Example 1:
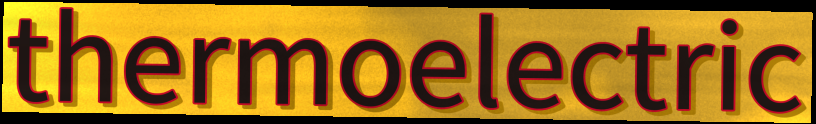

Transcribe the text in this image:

thermoelectric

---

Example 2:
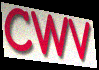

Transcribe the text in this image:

CWV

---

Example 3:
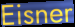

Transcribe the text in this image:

Eisner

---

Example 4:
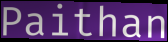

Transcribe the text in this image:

Paithan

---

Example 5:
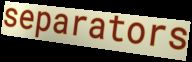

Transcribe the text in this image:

separators